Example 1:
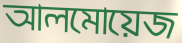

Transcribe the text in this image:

আলমোয়েজ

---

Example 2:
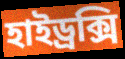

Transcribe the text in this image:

হাইড্রক্সি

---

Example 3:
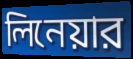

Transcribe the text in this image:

লিনেয়ার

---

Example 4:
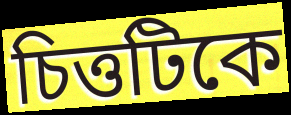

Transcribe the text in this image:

চিত্তটিকে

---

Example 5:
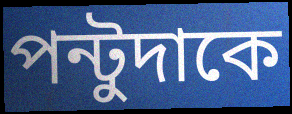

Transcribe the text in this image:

পন্টুদাকে